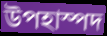
উপহাস্পদ